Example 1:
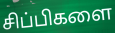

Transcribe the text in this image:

சிப்பிகளை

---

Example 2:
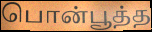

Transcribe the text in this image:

பொன்பூத்த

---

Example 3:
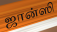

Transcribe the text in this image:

ஜான்ஸி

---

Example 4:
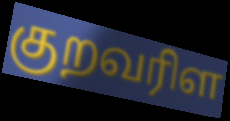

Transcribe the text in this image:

குறவரிள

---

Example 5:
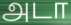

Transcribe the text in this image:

அடா